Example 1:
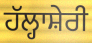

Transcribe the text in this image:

ਹੱਲ੍ਹਾਸ਼ੇਰੀ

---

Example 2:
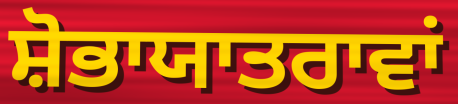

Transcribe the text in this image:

ਸ਼ੋਭਾਯਾਤਰਾਵਾਂ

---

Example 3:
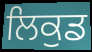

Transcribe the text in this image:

ਲਿਕੁਡ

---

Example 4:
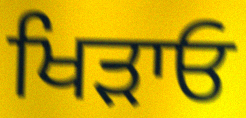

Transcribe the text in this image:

ਖਿੜਾਓ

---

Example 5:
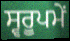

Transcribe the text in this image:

ਸ੍ਵਰੂਪਮੇਂ